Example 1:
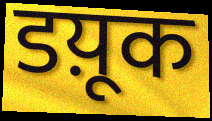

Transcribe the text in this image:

डय़ूक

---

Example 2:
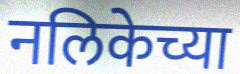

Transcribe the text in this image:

नलिकेच्या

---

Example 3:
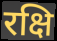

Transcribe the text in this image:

रक्षि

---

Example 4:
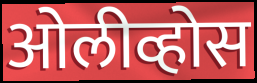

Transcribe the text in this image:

ओलीव्होस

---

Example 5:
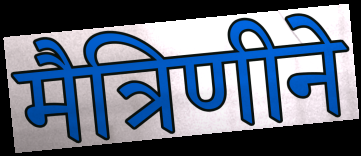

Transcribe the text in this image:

मैत्रिणीने